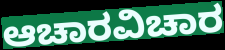
ಆಚಾರವಿಚಾರ